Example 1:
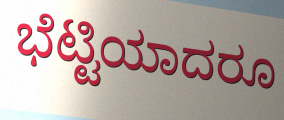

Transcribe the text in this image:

ಭೆಟ್ಟಿಯಾದರೂ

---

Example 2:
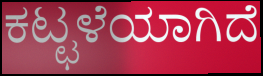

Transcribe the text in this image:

ಕಟ್ಟಳೆಯಾಗಿದೆ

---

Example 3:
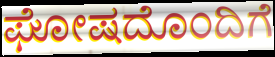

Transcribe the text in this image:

ಘೋಷದೊಂದಿಗೆ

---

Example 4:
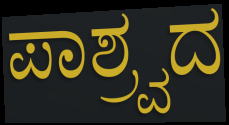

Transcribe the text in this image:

ಪಾಶ್ರ್ವದ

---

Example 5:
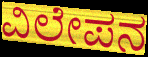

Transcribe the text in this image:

ವಿಲೇಪನ